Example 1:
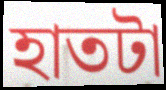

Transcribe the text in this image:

হাতটা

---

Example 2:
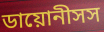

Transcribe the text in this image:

ডায়োনীসস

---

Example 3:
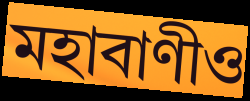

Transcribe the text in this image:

মহাবাণীও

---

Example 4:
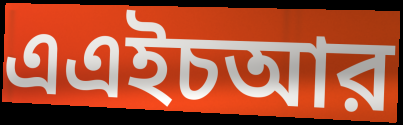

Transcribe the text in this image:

এএইচআর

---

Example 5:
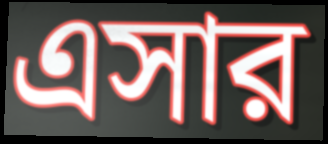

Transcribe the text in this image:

এসার